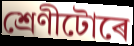
শ্ৰেণীটোৰে